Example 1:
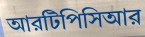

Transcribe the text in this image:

আরটিপিসিআর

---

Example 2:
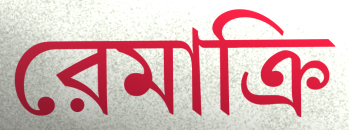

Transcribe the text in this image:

রেমাক্রি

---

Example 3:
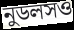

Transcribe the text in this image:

নুডলসও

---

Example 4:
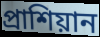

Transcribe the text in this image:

প্রাশিয়ান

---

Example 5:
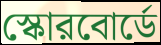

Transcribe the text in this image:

স্কোরবোর্ডে